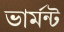
ভার্মন্ট